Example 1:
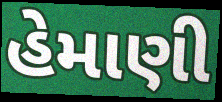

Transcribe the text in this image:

હેમાણી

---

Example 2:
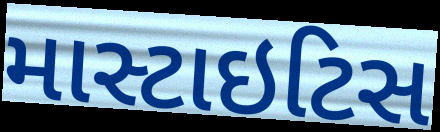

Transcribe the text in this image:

માસ્ટાઇટિસ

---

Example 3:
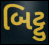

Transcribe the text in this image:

બિટ્ટુ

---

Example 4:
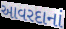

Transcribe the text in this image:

આવરદાનાં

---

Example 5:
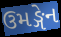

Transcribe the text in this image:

ઉમઙ્ગેન